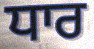
ਧਾਰ